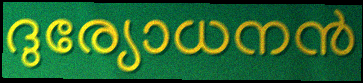
ദുര്യോധനൻ